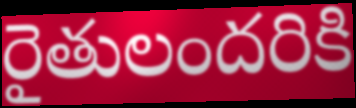
రైతులందరికి